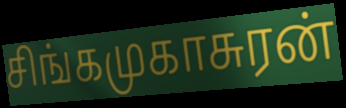
சிங்கமுகாசுரன்